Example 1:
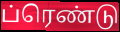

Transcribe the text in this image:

ப்ரெண்டு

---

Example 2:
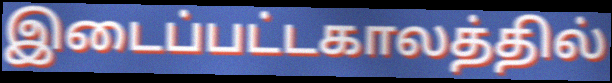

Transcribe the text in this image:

இடைப்பட்டகாலத்தில்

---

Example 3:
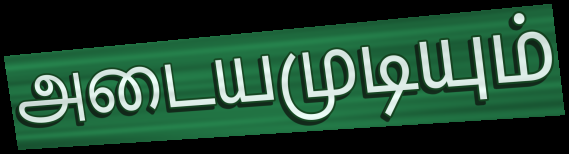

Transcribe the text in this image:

அடையமுடியும்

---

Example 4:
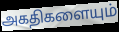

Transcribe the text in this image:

அகதிகளையும்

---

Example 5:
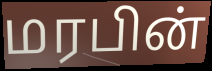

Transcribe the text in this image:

மரபின்